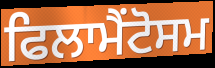
ਫਿਲਾਮੈਂਟੋਸਮ